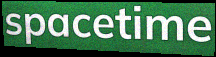
spacetime